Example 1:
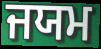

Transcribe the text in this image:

ਜਯਮ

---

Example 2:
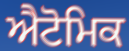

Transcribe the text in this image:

ਐਟੋਮਿਕ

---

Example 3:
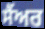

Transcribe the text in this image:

ਸੈਂਅਰ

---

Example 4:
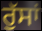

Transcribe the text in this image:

ਰੁੱਸਾਂ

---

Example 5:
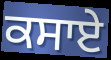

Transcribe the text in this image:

ਕਸਾਏ